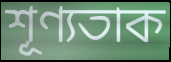
শূণ্যতাক